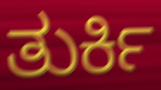
ತುರ್ಕಿ